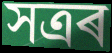
সত্ৰৰ